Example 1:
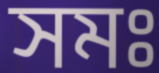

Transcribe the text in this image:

সমঃ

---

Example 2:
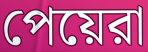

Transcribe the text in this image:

পেয়েরা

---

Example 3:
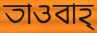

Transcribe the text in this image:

তাওবাহ্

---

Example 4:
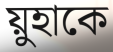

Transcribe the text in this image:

য়ুহাকে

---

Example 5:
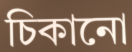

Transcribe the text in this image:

চিকানো